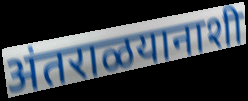
अंतराळयानाशी